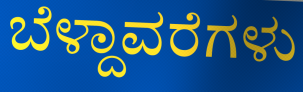
ಬೆಳ್ದಾವರೆಗಳು